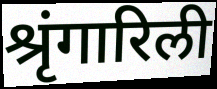
श्रृंगारिली